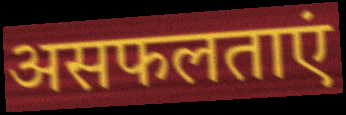
असफलताएं